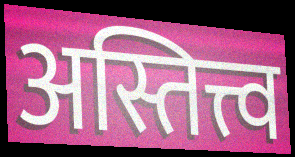
अस्तित्त्व